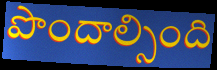
పొందాల్సింది